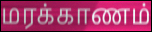
மரக்காணம்